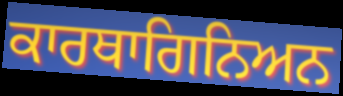
ਕਾਰਥਾਗਿਨਿਅਨ